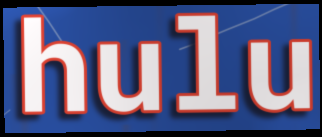
hulu